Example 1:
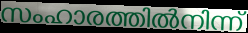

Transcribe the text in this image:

സംഹാരത്തിൽനിന്ന്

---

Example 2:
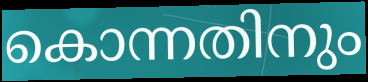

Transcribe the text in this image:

കൊന്നതിനും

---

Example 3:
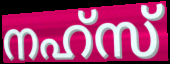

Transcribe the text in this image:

നഹ്സ്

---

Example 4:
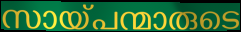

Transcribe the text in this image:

സായ്പന്മാരുടെ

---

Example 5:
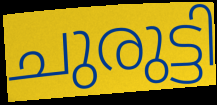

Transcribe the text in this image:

ചുരുട്ടി